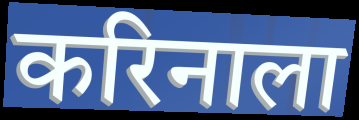
करिनाला